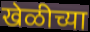
खेळीच्या